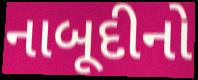
નાબૂદીનો